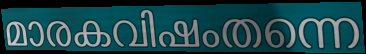
മാരകവിഷംതന്നെ